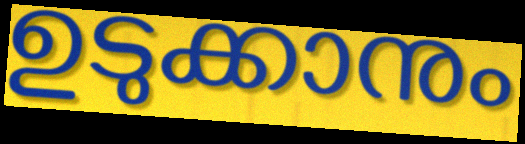
ഉടുക്കാനും